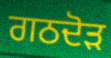
ਗਠਦੋੜ